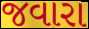
જવારા